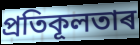
প্ৰতিকূলতাৰ